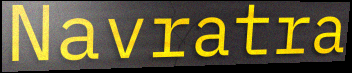
Navratra